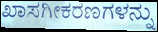
ಖಾಸಗೀಕರಣಗಳನ್ನು